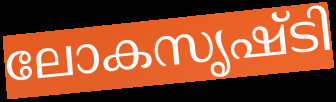
ലോകസൃഷ്ടി